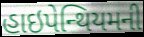
હાઇપેન્થિયમની